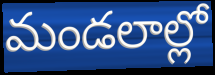
మండలాల్లో